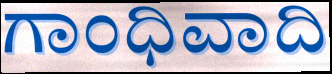
ಗಾಂಧಿವಾದಿ